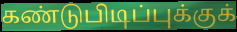
கண்டுபிடிப்புக்குக்